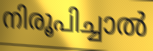
നിരൂപിച്ചാൽ